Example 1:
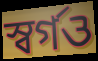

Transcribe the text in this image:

স্বর্গও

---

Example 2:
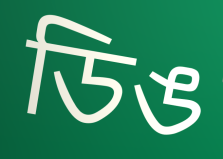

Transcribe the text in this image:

ডিঙ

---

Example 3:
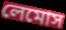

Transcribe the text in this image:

লেমোস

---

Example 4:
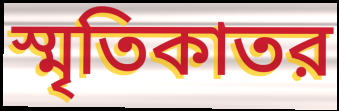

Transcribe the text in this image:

স্মৃতিকাতর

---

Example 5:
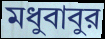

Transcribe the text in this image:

মধুবাবুর